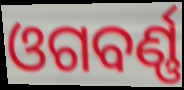
ଓଗବର୍ଣ୍ଣ